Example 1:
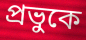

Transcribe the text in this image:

প্রভুকে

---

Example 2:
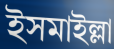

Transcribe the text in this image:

ইসমাইল্লা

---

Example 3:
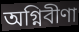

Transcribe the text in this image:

অগ্নিবীণা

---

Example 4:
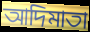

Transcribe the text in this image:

আদিমাতা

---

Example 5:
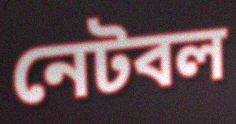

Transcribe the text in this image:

নেটবল